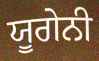
ਯੂਗੇਨੀ